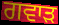
ਗਵਾੜ